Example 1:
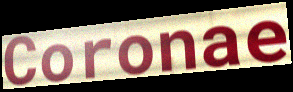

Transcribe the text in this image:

Coronae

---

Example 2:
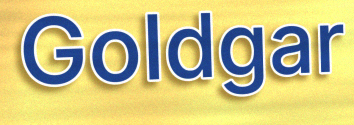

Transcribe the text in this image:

Goldgar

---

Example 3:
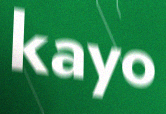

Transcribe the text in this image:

kayo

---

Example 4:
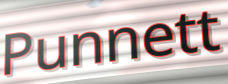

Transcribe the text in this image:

Punnett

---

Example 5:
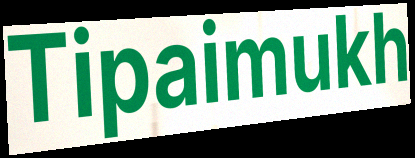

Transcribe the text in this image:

Tipaimukh